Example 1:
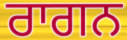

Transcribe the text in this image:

ਰਾਗਨ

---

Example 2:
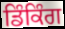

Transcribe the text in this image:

ਡਿੰਕਿੰਗ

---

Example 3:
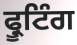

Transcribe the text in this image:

ਫ੍ਰੂਟਿੰਗ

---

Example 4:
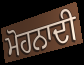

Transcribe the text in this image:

ਮੋਹਨਾਦੀ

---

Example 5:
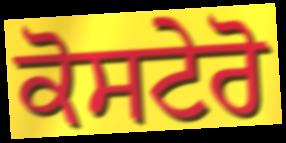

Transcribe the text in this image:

ਕੋਸਟੇਰੋ